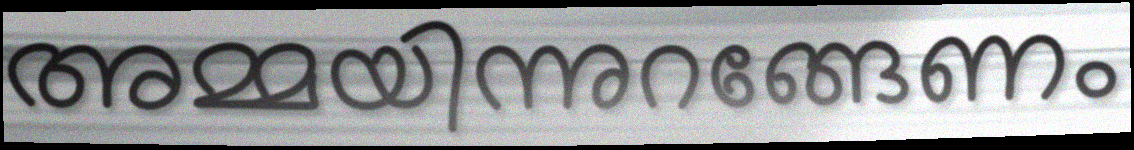
അമ്മയിന്നുറങ്ങേണം